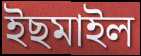
ইছমাইল